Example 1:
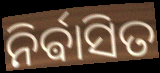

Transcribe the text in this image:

ନିର୍ଵାସିତ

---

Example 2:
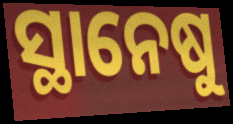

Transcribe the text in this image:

ସ୍ଥାନେଷୁ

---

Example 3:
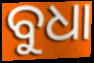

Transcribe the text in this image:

ବୁଧା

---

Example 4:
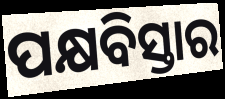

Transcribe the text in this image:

ପକ୍ଷବିସ୍ତାର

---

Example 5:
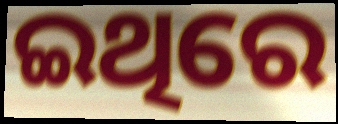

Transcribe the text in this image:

ଇଥିରେ